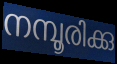
നമ്പൂരിക്കു